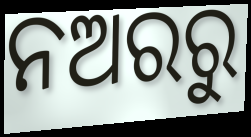
ନଅରରୁ